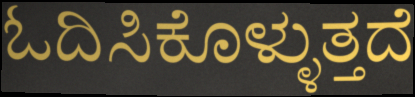
ಓದಿಸಿಕೊಳ್ಳುತ್ತದೆ